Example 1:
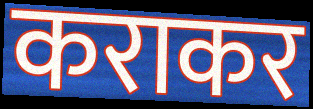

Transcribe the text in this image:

कराकर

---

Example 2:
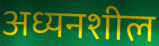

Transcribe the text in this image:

अध्यनशील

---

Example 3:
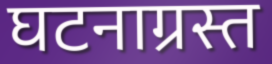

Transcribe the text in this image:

घटनाग्रस्त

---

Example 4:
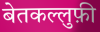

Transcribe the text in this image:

बेतकल्लुफ़ी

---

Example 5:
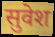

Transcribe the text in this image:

सुवेश